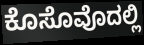
ಕೊಸೊವೊದಲ್ಲಿ